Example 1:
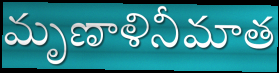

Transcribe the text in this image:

మృణాళినీమాత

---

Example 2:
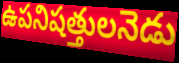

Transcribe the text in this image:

ఉపనిషత్తులనెడు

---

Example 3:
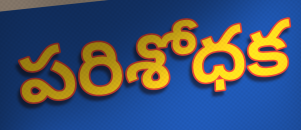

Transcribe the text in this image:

పరిశోధక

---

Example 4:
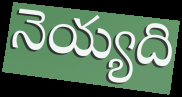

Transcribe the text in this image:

నెయ్యది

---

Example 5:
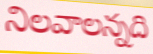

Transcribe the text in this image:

నిలవాలన్నది